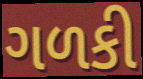
ગળકી